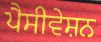
ਪੈਸੀਵੇਸ਼ਨ